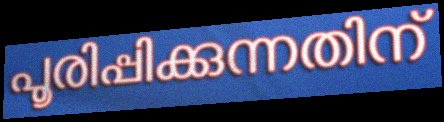
പൂരിപ്പിക്കുന്നതിന്